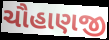
ચૌહાણજી